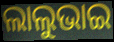
ଲାଲୁଭାଇ